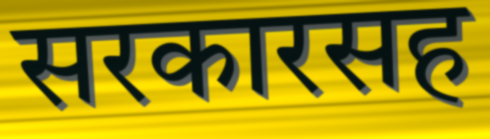
सरकारसह